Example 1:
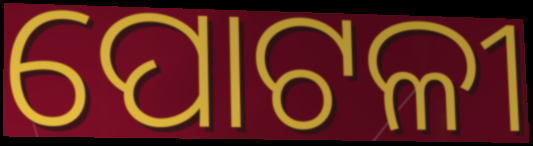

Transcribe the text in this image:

ପୋଟଳୀ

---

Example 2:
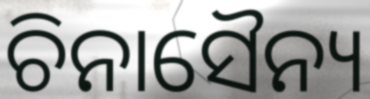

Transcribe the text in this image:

ଚିନାସୈନ୍ୟ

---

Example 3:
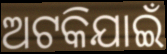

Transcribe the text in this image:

ଅଟକିଯାଇଁ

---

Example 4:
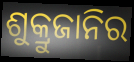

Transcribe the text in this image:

ଶୁକ୍ରୁଜାନିର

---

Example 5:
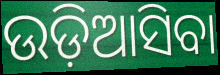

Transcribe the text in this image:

ଉଡ଼ିଆସିବା